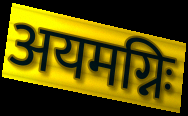
अयमग्निः